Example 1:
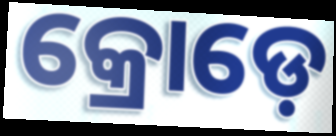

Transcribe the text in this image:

କ୍ରୋଡ଼େ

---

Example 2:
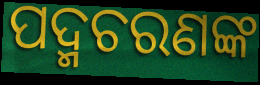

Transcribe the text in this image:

ପଦ୍ମଚରଣଙ୍କ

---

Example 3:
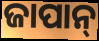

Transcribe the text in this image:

ଜାପାନ୍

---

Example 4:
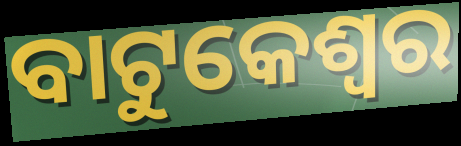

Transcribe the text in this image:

ବାଟୁକେଶ୍ୱର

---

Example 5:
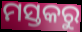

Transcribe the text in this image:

ମସ୍ତକରୁ